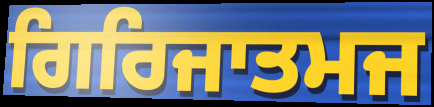
ਗਿਰਿਜਾਤਮਜ